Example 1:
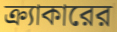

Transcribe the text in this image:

ক্র্যাকারের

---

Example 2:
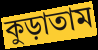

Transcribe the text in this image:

কুড়াতাম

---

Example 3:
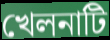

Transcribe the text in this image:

খেলনাটি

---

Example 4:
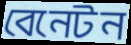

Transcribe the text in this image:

বেনেটন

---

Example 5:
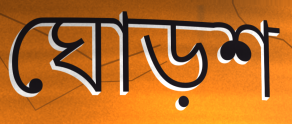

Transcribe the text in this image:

ঘোড়শ